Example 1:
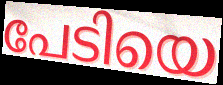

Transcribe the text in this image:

പേടിയെ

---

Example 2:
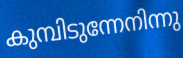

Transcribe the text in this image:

കുമ്പിടുന്നേനിന്നു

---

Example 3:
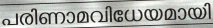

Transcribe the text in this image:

പരിണാമവിധേയമായി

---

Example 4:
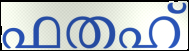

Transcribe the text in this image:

ഫതഹ്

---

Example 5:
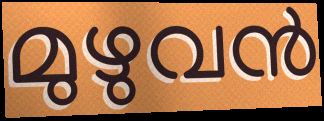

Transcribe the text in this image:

മുഴുവൻ